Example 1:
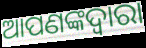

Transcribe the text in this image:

ଆପଣଙ୍କଦ୍ବାରା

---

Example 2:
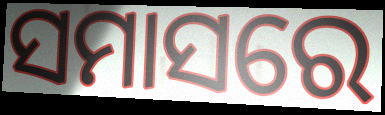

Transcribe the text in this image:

ସମାସରେ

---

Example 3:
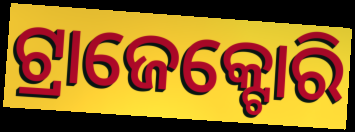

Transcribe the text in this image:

ଟ୍ରାଜେକ୍ଟୋରି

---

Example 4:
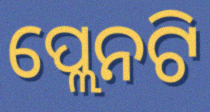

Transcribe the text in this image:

ପ୍ଲେନଟି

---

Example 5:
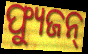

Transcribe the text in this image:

ଫ୍ୟୁଜନ୍